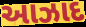
આઝાદ